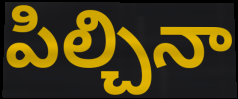
పిల్చినా